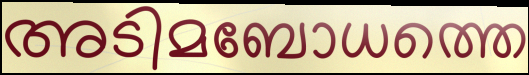
അടിമബോധത്തെ